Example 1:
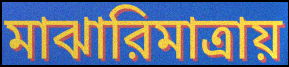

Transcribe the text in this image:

মাঝারিমাত্রায়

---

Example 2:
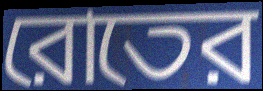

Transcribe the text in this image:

রোতের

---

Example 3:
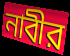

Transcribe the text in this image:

নাবীর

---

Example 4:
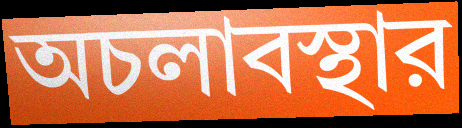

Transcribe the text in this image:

অচলাবস্থার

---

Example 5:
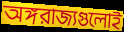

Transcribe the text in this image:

অঙ্গরাজ্যগুলোই